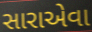
સારાએવા